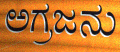
ಅಗ್ರಜನು